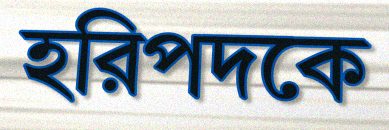
হরিপদকে